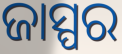
ଜାସ୍ପର